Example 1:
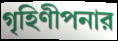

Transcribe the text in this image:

গৃহিণীপনার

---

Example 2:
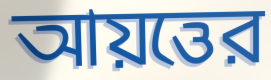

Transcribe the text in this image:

আয়ত্তের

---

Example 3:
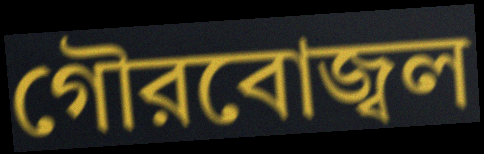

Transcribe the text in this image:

গৌরবোজ্বল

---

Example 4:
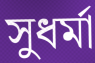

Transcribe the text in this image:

সুধর্মা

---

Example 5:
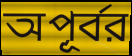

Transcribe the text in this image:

অপূর্বর